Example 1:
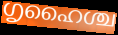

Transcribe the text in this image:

ഗൃഹൈശ്ച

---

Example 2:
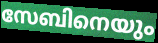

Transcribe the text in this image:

സേബിനെയും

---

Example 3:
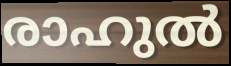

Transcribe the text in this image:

രാഹുൽ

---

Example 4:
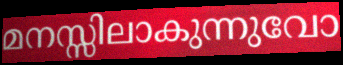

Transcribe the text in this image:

മനസ്സിലാകുന്നുവോ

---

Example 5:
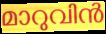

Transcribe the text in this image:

മാറുവിൻ